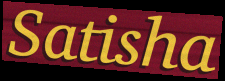
Satisha